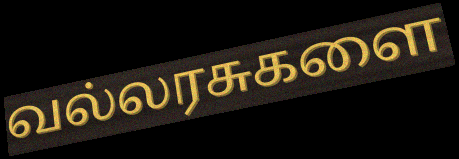
வல்லரசுகளை